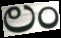
లం